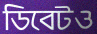
ডিবেটও